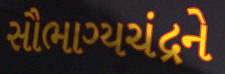
સૌભાગ્યચંદ્રને